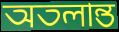
অতলান্ত